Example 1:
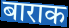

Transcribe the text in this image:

बाराक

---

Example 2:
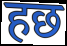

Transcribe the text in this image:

हछ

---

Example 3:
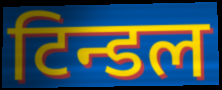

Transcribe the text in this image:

टिन्डल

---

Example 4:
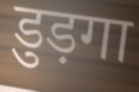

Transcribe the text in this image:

डुड़गा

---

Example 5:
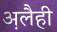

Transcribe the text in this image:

अ़लैही